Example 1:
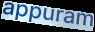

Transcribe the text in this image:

appuram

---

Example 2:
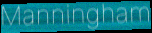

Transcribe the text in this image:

Manningham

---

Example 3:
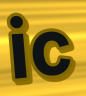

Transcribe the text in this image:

ic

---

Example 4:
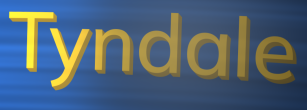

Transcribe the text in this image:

Tyndale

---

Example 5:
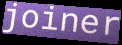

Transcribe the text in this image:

joiner